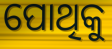
ପୋଥିକୁ